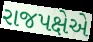
રાજપક્ષેએ